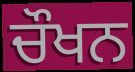
ਚੌਖਨ